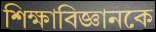
শিক্ষাবিজ্ঞানকে